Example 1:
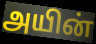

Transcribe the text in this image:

அயின்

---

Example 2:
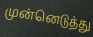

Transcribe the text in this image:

முன்னெடுத்து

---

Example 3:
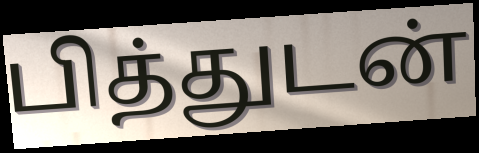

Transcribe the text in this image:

பித்துடன்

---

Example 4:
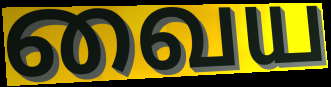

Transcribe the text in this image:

வைய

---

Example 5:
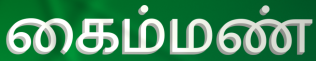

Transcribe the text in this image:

கைம்மண்